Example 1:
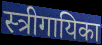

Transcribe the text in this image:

स्त्रीगायिका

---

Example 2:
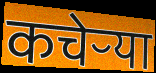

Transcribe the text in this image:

कचेऱ्या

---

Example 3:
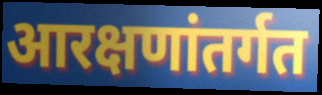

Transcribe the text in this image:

आरक्षणांतर्गत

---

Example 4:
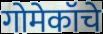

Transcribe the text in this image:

गोमेकॉचे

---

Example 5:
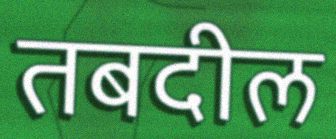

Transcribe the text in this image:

तबदील